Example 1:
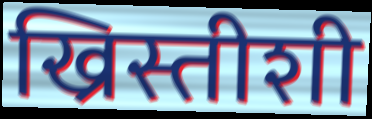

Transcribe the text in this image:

ख्रिस्तीशी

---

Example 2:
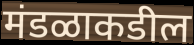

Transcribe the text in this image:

मंडळाकडील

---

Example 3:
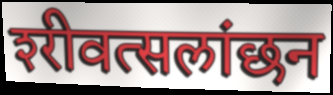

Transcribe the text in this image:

श्रीवत्सलांछन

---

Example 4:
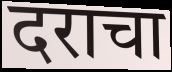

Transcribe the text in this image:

दराचा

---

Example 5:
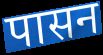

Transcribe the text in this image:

पासन